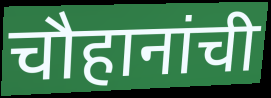
चौहानांची